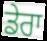
ਡੇਰਾ